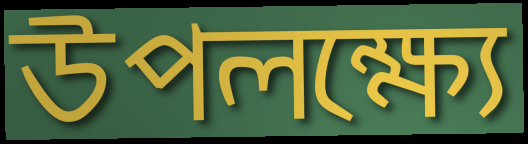
উপলক্ষ্যে